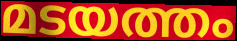
മടയത്തം